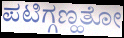
ಪಟಿಗ್ಗಣ್ಹತೋ